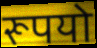
रूपयो